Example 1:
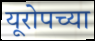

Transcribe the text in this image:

यूरोपच्या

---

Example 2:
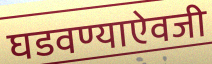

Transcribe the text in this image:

घडवण्याऐवजी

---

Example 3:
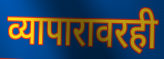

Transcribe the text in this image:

व्यापारावरही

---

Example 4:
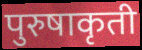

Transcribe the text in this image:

पुरुषाकृती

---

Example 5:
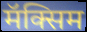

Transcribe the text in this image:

मॅक्सिम